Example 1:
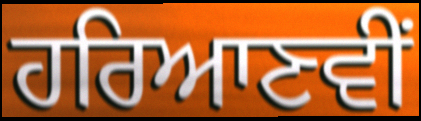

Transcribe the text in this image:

ਹਰਿਆਣਵੀਂ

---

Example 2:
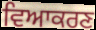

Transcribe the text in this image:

ਵਿਆਕਰਣ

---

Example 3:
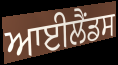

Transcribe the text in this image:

ਆਈਲੈਂਡਸ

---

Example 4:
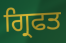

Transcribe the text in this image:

ਗ੍ਰਿਫਤ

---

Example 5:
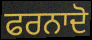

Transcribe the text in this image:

ਫਰਨਾਦੋ